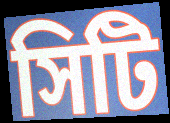
সিটি